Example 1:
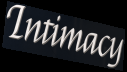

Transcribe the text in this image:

Intimacy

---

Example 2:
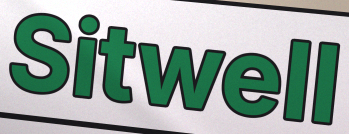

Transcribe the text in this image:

Sitwell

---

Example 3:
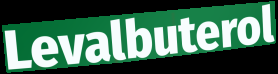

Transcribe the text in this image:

Levalbuterol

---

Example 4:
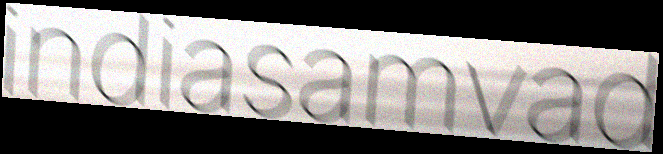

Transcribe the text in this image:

indiasamvad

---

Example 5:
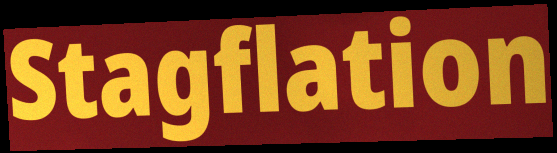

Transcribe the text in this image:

Stagflation